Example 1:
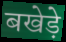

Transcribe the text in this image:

बखेड़े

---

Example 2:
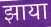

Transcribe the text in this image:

झाया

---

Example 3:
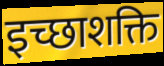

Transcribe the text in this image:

इच्छाशक्ति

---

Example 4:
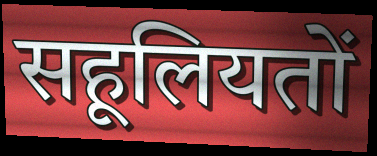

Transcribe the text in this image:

सहूलियतों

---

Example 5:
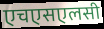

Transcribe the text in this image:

एचएसएलसी